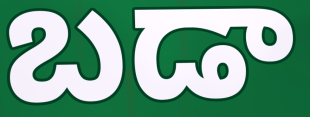
బడా